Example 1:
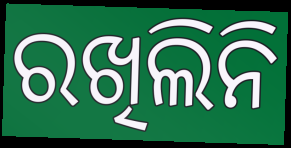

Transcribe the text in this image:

ରଖିଲିନି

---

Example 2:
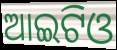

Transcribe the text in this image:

ଆଇଟିଓ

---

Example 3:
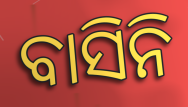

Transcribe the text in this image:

ବାସିନି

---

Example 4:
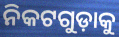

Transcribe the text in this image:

ନିକଟଗୁଡ଼ାକୁ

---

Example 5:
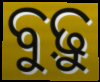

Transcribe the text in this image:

ବୁଢ଼ୁ